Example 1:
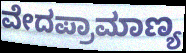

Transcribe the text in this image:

ವೇದಪ್ರಾಮಾಣ್ಯ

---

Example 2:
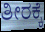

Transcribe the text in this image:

ತೀರಕ್ಕೆ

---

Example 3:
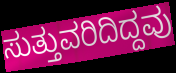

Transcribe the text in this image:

ಸುತ್ತುವರಿದಿದ್ದವು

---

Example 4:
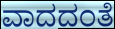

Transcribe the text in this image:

ವಾದದಂತೆ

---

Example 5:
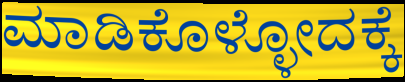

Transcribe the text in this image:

ಮಾಡಿಕೊಳ್ಳೋದಕ್ಕೆ